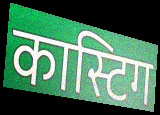
कास्टिग